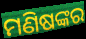
ମଣିଷଙ୍କର